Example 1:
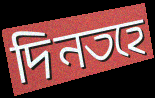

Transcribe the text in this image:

দিনতহে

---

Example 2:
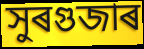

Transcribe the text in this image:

সুৰগুজাৰ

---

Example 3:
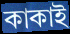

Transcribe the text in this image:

কাকাই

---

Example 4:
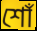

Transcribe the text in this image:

শোঁ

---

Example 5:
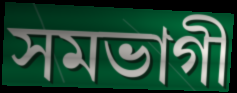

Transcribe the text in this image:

সমভাগী